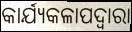
କାର୍ଯ୍ୟକଳାପଦ୍ବାରା